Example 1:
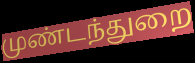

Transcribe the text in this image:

முண்டந்துறை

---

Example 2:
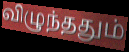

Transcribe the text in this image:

விழுந்ததும்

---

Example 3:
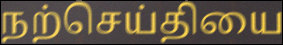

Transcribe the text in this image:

நற்செய்தியை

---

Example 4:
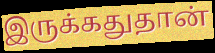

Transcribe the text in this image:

இருக்கதுதான்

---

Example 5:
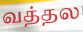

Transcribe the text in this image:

வத்தல